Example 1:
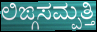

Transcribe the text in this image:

ಲಿಙ್ಗಸಮ್ಪತ್ತಿ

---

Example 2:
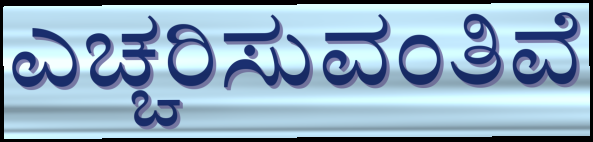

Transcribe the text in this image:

ಎಚ್ಚರಿಸುವಂತಿವೆ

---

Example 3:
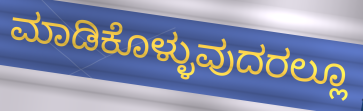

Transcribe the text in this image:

ಮಾಡಿಕೊಳ್ಳುವುದರಲ್ಲೂ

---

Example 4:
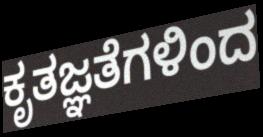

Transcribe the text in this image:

ಕೃತಜ್ಞತೆಗಳಿಂದ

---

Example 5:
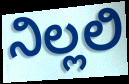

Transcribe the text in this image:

ನಿಲ್ಲಲಿ